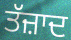
ਤੱਜ਼ਾਦ